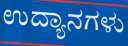
ಉದ್ಯಾನಗಳು